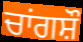
ਚਾਂਗਸ਼ੌ